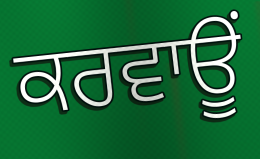
ਕਰਵਾਊਂ